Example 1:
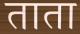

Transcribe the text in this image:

ताता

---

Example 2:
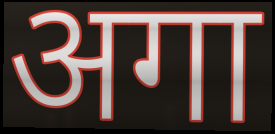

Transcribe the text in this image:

अगा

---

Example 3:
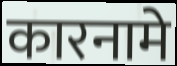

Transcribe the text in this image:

कारनामे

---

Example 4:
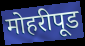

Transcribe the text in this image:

मोहरीपूड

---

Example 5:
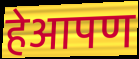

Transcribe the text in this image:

हेआपण